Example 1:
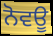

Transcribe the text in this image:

ਨੋਵਊ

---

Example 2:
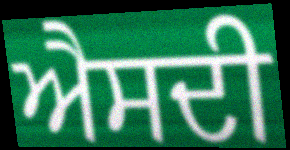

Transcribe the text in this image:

ਐਸਦੀ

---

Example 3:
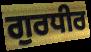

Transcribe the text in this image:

ਗੁਰਧੀਰ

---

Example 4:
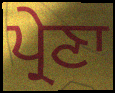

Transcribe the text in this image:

ਪ੍ਰੇਣਾ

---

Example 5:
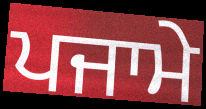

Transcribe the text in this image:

ਪਜਾਮੇ